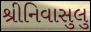
શ્રીનિવાસુલુ